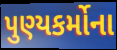
પુણ્યકર્મોના